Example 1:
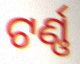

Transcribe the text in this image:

ଟର୍ଣ୍ଣ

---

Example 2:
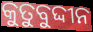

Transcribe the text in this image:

କୁତୁବୁଦ୍ଦୀନ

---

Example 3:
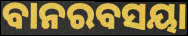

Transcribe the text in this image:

ବାନରବସୟା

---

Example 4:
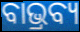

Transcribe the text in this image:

ବାଭ୍ରବ୍ୟ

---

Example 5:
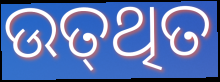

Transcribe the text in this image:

ଉତ୍‌ଥିତ